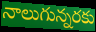
నాలుగున్నరకు